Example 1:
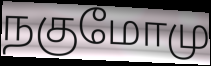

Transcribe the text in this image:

நகுமோமு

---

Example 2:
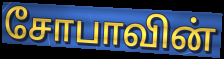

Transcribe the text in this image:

சோபாவின்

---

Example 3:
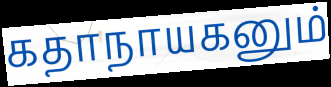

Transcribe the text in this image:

கதாநாயகனும்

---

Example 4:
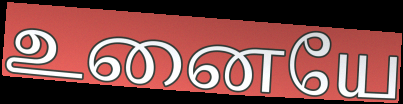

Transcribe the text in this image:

உனையே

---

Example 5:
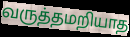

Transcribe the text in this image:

வருத்தமறியாத